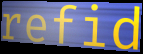
refid